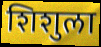
शिशुला